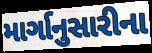
માર્ગાનુસારીના